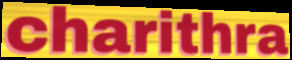
charithra